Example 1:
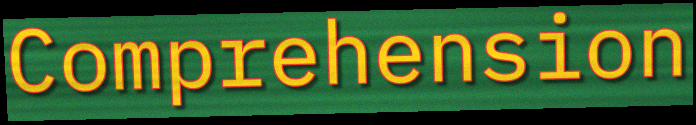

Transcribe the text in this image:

Comprehension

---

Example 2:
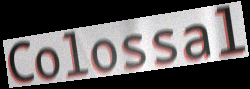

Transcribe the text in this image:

Colossal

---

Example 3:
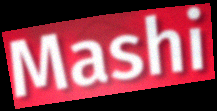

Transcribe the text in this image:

Mashi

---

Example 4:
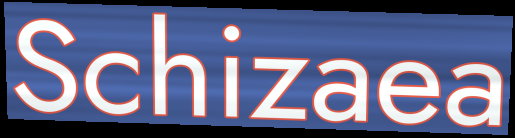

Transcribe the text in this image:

Schizaea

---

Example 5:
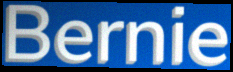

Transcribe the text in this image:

Bernie